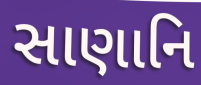
સાણાનિ